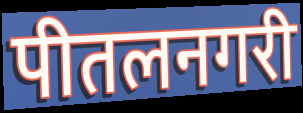
पीतलनगरी